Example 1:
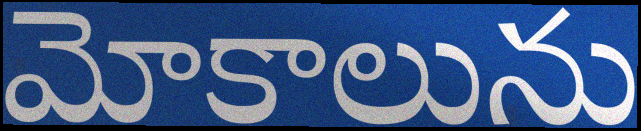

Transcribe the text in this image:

మోకాలును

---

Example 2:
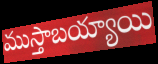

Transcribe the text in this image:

ముస్తాబయ్యాయి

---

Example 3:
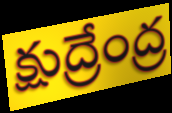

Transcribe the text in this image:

క్షుద్రేంద్ర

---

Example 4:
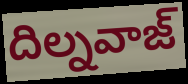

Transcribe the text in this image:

దిల్నవాజ్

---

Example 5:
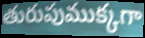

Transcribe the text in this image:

తురుపుముక్కగా